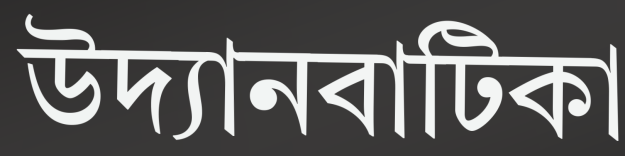
উদ্যানবাটিকা